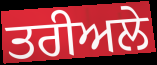
ਤਰੀਅਲੇ